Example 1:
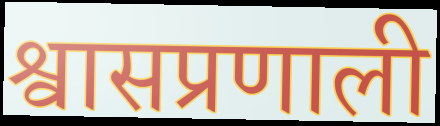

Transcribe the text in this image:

श्वासप्रणाली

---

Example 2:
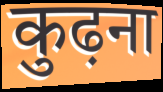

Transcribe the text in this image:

कुढ़ना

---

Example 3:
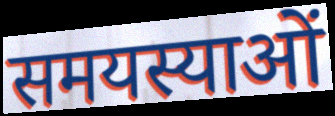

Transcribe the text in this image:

समयस्याओं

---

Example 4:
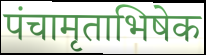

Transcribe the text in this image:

पंचामृताभिषेक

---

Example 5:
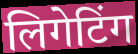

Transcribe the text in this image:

लिगेटिंग